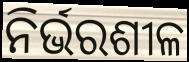
ନିର୍ଭରଶୀଳ